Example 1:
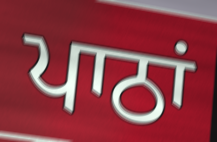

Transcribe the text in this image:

ਪਾਠਾਂ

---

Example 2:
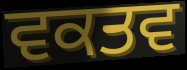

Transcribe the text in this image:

ਵਕਤਵ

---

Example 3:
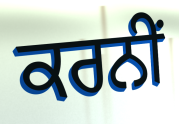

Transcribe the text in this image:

ਕਰਨੀਂ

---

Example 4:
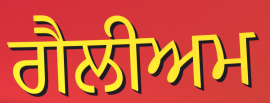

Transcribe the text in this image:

ਗੈਲੀਅਮ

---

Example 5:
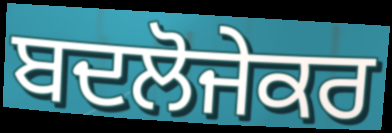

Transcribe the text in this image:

ਬਦਲੋਜੇਕਰ